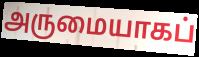
அருமையாகப்